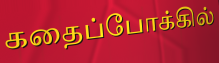
கதைப்போக்கில்